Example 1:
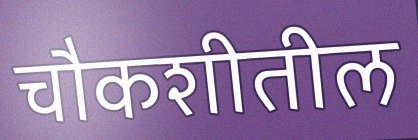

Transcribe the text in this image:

चौकशीतील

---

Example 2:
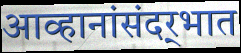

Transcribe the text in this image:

आव्हानांसंदर्भात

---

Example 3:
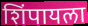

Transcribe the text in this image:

शिंपायला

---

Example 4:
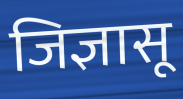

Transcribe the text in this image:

जिज्ञासू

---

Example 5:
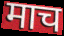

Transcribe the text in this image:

माच